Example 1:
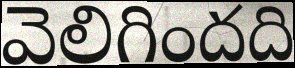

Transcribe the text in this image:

వెలిగిందది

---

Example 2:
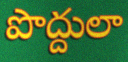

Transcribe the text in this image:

పొద్దులా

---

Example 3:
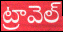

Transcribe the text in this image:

ట్రావెల్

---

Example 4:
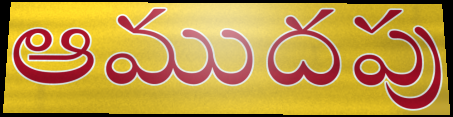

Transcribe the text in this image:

ఆముదపు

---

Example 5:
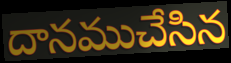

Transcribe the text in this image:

దానముచేసిన